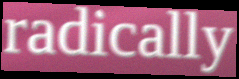
radically